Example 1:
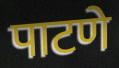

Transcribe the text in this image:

पाटणे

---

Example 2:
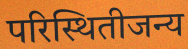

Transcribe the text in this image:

परिस्थितीजन्य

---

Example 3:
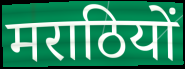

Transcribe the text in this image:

मराठियों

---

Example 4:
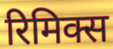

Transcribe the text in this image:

रिमिक्स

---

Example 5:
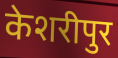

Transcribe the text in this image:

केशरीपुर